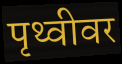
पृथ्वीवर